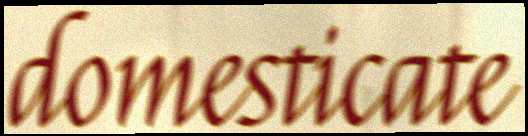
domesticate